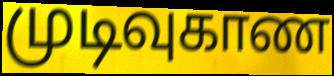
முடிவுகாண